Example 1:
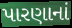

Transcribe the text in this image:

પારણાનાં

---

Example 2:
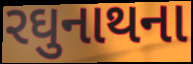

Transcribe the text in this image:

રઘુનાથના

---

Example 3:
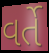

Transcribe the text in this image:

વર્તે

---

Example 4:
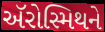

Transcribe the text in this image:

ઍરોસ્મિથને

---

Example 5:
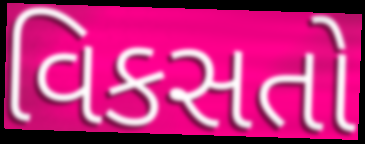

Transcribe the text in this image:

વિકસતો